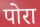
पोरा